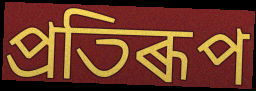
প্ৰতিৰূপ